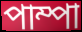
পাম্পা